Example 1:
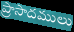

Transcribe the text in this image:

ప్రాసాదములు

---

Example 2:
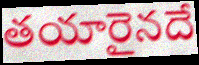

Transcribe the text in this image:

తయారైనదే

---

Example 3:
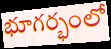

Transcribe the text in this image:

భూగర్భంలో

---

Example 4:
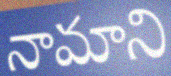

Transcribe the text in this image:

నామాని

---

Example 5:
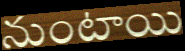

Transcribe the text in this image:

నుంటాయి